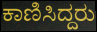
ಕಾಣಿಸಿದ್ದರು